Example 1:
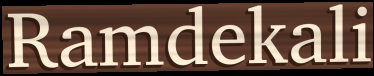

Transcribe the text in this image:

Ramdekali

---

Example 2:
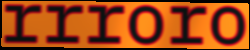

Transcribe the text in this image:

rrroro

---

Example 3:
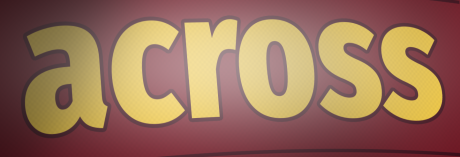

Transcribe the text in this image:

across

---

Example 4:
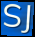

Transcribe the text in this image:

SJ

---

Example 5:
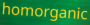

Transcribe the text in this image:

homorganic